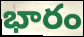
భారం